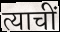
त्याचीं